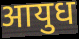
आयुध